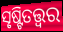
ସୃଷ୍ଟିତତ୍ତ୍ୱର